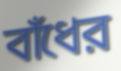
বাঁধের